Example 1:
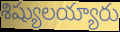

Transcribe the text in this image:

శిష్యులయ్యారు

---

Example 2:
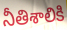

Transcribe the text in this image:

నీతిశాలికి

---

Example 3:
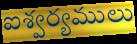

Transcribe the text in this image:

ఐశ్వర్యములు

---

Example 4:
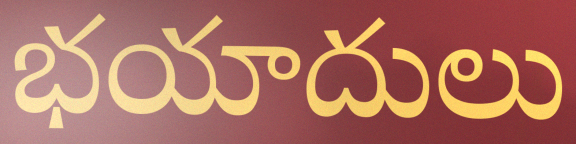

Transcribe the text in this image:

భయాదులు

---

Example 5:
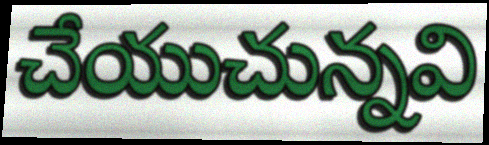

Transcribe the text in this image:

చేయుచున్నవి